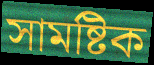
সামষ্টিক